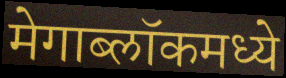
मेगाब्लॉकमध्ये